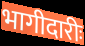
भागीदारीः